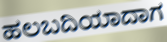
ಹಲಬದಿಯಾದಾಗ